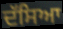
ਦੱਸਿਆ